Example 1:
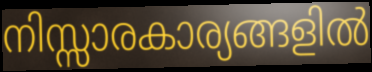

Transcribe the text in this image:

നിസ്സാരകാര്യങ്ങളിൽ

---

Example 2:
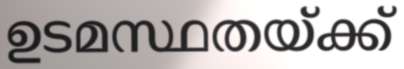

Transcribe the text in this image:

ഉടമസ്ഥതയ്ക്ക്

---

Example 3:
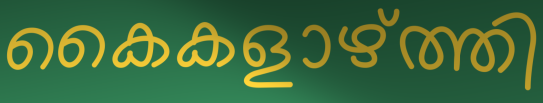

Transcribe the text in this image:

കൈകളാഴ്ത്തി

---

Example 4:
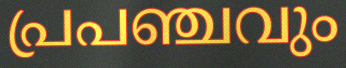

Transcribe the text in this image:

പ്രപഞ്ചവും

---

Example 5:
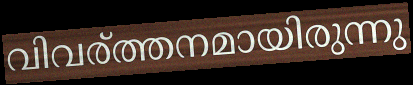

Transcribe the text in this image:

വിവര്ത്തനമായിരുന്നു